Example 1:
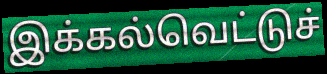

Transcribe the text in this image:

இக்கல்வெட்டுச்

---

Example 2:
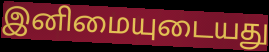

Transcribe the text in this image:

இனிமையுடையது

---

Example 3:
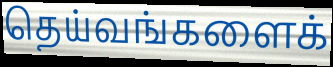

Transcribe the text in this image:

தெய்வங்களைக்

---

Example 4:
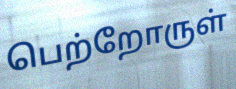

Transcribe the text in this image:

பெற்றோருள்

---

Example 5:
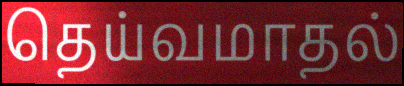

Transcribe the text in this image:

தெய்வமாதல்